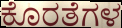
ಕೊರತೆಗಳ